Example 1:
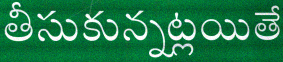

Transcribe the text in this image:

తీసుకున్నట్లయితే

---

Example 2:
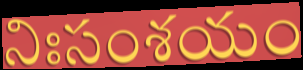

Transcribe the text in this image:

నిఃసంశయం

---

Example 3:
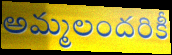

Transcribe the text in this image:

అమ్మలందరికీ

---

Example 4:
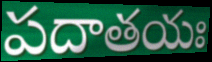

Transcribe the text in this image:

పదాతయః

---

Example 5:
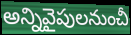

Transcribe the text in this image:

అన్నివైపులనుంచీ